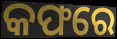
କଫରେ